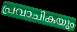
പ്രവാചികയും